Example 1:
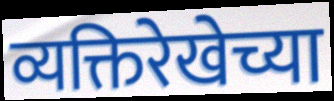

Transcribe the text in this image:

व्यक्तिरेखेच्या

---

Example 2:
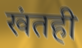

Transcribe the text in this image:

खंतही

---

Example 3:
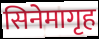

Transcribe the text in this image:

सिनेमागृह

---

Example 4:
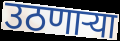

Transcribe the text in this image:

उठणाऱ्या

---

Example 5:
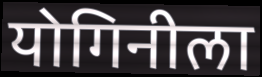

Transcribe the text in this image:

योगिनीला